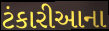
ટંકારીઆના